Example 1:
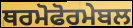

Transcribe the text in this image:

ਥਰਮੋਫੋਰਮੇਬਲ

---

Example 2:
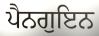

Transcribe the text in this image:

ਪੈਨਗੁਇਨ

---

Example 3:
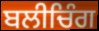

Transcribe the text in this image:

ਬਲੀਚਿੰਗ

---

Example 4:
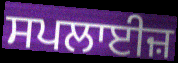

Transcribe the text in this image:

ਸਪਲਾਈਜ਼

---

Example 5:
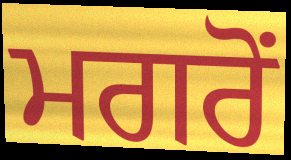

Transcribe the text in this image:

ਮਗਰੋਂ